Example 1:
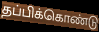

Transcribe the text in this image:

தப்பிக்கொண்டு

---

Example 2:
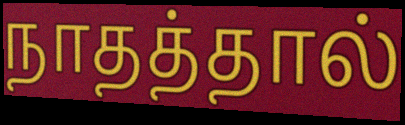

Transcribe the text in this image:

நாதத்தால்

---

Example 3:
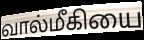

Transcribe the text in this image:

வால்மீகியை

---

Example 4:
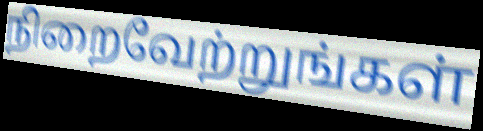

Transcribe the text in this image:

நிறைவேற்றுங்கள்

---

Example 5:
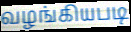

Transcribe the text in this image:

வழங்கியபடி